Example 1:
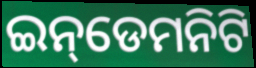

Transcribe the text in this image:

ଇନ୍‌ଡେମନିଟି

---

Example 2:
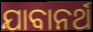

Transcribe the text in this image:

ଯାବାନର୍ଥ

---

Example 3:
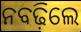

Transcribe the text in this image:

ନବଢ଼ିଲେ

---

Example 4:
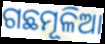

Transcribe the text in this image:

ଗଛମୂଳିଆ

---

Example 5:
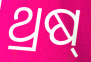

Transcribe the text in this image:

ଥ୍ରଷ୍